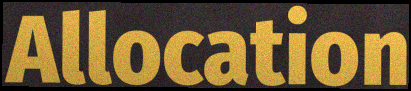
Allocation